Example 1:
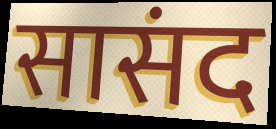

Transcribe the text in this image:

सासंद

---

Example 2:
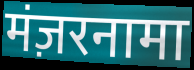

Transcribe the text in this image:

मंज़रनामा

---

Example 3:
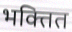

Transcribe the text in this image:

भक्तित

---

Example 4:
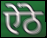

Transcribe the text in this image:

ऐंठे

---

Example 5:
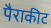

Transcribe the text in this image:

पैराकीट